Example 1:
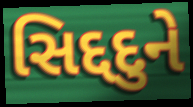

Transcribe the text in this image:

સિદ્દદુને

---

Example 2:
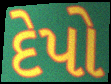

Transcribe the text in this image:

દેપો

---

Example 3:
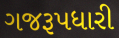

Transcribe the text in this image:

ગજરૂપધારી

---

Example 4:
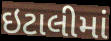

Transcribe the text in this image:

ઇટાલીમાં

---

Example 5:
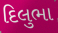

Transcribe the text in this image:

દિલુભા